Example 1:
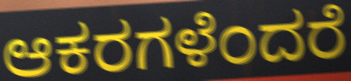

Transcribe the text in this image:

ಆಕರಗಳೆಂದರೆ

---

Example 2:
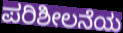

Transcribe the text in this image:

ಪರಿಶೀಲನೆಯ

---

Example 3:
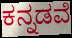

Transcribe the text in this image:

ಕನ್ನಡವೆ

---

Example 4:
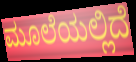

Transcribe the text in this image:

ಮೂಲೆಯಲ್ಲಿದೆ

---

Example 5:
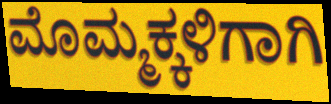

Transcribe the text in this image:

ಮೊಮ್ಮಕ್ಕಳಿಗಾಗಿ